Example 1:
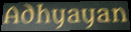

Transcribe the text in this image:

Adhyayan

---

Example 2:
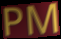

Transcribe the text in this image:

PM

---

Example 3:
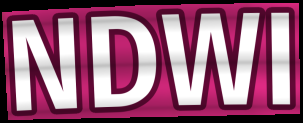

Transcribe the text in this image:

NDWI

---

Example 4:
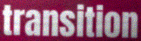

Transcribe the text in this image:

transition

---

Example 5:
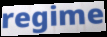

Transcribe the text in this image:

regime